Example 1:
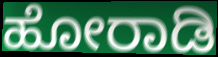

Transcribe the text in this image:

ಹೋರಾಡಿ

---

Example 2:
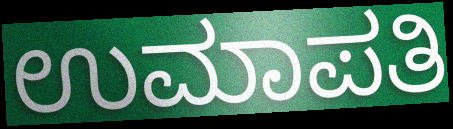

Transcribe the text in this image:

ಉಮಾಪತಿ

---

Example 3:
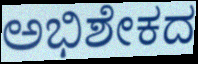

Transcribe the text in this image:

ಅಭಿಶೇಕದ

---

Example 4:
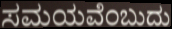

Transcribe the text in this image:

ಸಮಯವೆಂಬುದು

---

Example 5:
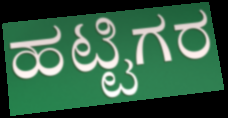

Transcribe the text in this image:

ಹಟ್ಟಿಗರ